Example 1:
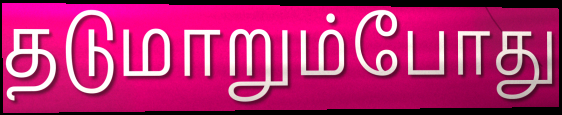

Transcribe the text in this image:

தடுமாறும்போது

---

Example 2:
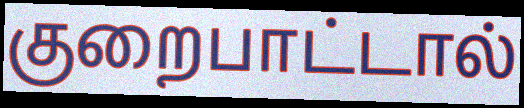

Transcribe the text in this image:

குறைபாட்டால்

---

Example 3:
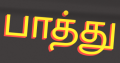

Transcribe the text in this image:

பாத்து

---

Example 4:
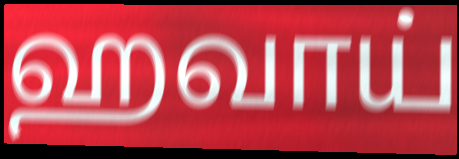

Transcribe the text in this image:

ஹவாய்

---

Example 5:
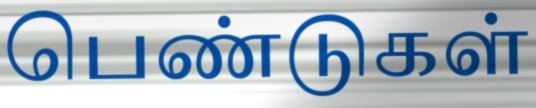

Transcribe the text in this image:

பெண்டுகள்